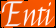
Enti